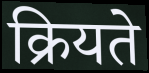
क्रियते